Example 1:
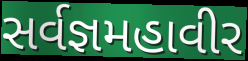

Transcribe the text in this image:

સર્વજ્ઞમહાવીર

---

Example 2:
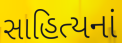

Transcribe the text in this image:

સાહિત્યનાં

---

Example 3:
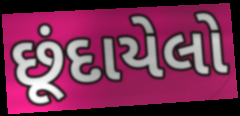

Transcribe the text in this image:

છૂંદાયેલો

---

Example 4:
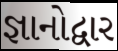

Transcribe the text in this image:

જ્ઞાનોદ્વાર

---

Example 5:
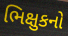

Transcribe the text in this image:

ભિક્ષુકનો